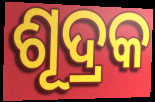
ଶୂଦ୍ରକ